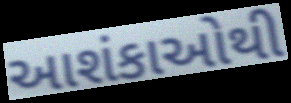
આશંકાઓથી